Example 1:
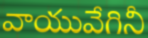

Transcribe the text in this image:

వాయువేగినీ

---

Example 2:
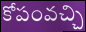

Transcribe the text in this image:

కోపంవచ్చి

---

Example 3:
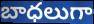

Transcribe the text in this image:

బాధలుగా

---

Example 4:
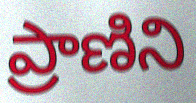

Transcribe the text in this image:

ప్రాణిని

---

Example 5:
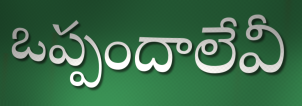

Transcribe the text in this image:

ఒప్పందాలేవీ